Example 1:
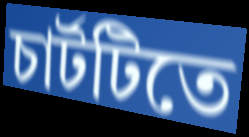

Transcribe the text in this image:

চার্টটিতে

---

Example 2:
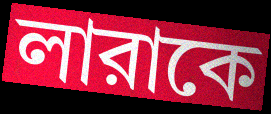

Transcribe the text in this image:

লারাকে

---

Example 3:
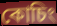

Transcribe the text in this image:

কোচিং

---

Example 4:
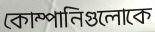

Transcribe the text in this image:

কোম্পানিগুলোকে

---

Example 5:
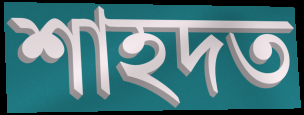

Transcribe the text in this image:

শাহদত